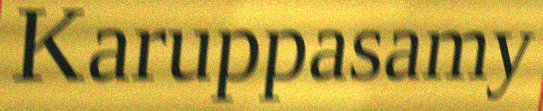
Karuppasamy